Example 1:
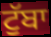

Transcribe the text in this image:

ਟੁੱਬਾ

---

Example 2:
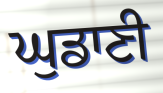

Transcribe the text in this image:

ਘੁਡਾਣੀ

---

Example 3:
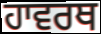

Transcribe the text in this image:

ਹਾਵਰਥ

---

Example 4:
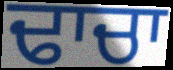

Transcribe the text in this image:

ਢਾਚਾ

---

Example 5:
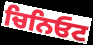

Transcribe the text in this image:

ਚਿਨਿਓਟ